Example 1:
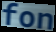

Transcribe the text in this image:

fon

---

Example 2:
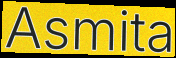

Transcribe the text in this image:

Asmita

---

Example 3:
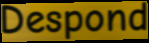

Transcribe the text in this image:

Despond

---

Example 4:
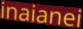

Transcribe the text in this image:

inaianei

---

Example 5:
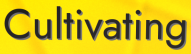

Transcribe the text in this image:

Cultivating